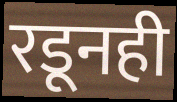
रडूनही